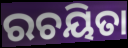
ରଚୟିତା